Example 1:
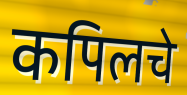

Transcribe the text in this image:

कपिलचे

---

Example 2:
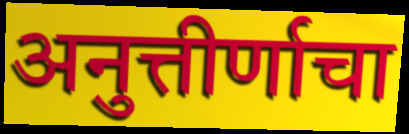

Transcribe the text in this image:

अनुत्तीर्णाचा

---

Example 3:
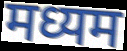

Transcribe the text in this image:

मध्यम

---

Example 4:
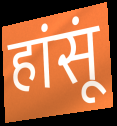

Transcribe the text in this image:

हांसूं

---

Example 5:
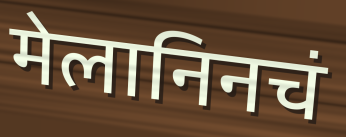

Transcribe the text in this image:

मेलानिनचं